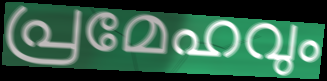
പ്രമേഹവും